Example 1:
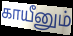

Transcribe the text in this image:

காயீனும்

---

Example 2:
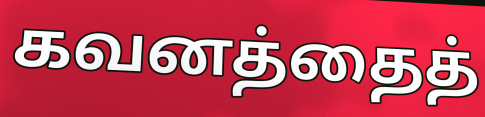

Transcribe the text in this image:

கவனத்தைத்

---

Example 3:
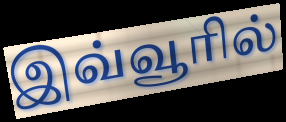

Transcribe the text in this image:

இவ்வூரில்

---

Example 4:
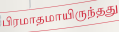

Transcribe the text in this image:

பிரமாதமாயிருந்தது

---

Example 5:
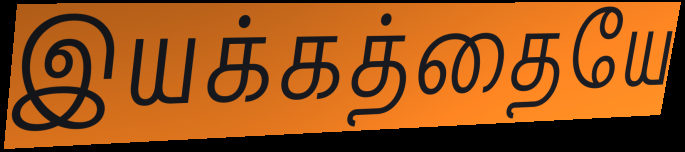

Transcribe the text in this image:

இயக்கத்தையே